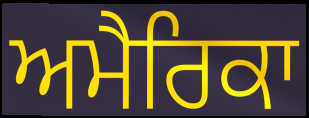
ਅਮੈਰਿਕਾ